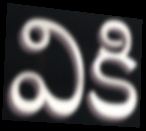
వికి